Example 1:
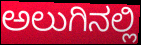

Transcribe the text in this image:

ಅಲುಗಿನಲ್ಲಿ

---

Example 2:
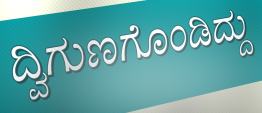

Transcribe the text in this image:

ದ್ವಿಗುಣಗೊಂಡಿದ್ದು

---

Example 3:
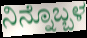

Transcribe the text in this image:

ನಿನ್ನೊಬ್ಬಳ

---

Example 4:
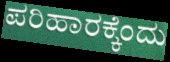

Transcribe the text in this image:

ಪರಿಹಾರಕ್ಕೆಂದು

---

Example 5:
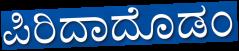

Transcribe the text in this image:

ಪಿರಿದಾದೊಡಂ